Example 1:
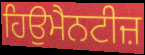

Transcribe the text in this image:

ਹਿਉਮੈਨਟੀਜ਼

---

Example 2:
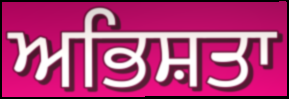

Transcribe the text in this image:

ਅਭਿਸ਼ਤਾ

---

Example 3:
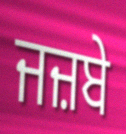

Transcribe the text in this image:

ਜਜ਼ਬੇ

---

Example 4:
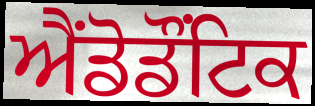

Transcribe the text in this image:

ਐਂਡੋਡੌਂਟਿਕ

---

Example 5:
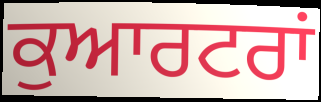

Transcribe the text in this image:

ਕੁਆਰਟਰਾਂ